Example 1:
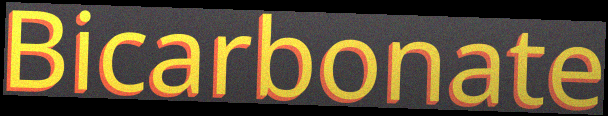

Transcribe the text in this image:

Bicarbonate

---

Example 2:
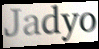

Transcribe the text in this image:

Jadyo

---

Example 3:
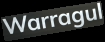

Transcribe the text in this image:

Warragul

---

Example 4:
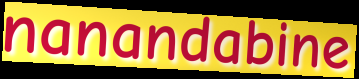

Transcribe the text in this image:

nanandabine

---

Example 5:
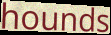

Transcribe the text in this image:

hounds